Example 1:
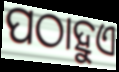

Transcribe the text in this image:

ପଠାହୁଏ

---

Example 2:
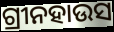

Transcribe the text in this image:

ଗ୍ରୀନହାଉସ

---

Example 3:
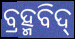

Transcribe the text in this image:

ବ୍ରହ୍ମବିଦ୍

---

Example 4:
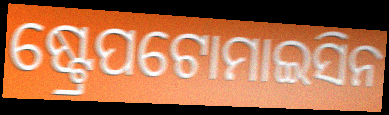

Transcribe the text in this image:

ଷ୍ଟ୍ରେପଟୋମାଇସିନ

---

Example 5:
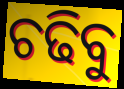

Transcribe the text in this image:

ଚଢିବୁ